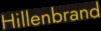
Hillenbrand